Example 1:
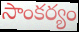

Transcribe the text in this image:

సాంకర్యం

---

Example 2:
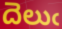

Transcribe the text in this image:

దెలుఁ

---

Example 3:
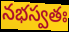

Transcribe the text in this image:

నభస్వతః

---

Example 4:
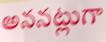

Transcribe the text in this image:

అననట్లుగా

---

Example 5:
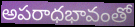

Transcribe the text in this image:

అపరాధభావంతో